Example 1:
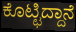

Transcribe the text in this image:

ಕೊಟ್ಟಿದ್ದಾನೆ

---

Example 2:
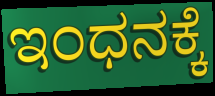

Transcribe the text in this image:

ಇಂಧನಕ್ಕೆ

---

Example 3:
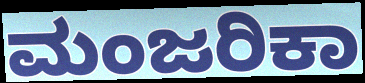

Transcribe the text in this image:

ಮಂಜರಿಕಾ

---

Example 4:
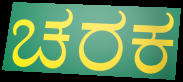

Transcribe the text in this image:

ಚರಕ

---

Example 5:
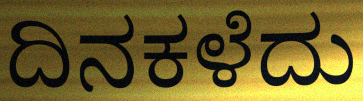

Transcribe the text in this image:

ದಿನಕಳೆದು